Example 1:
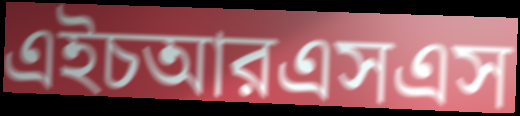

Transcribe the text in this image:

এইচআরএসএস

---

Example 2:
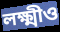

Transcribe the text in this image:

লক্ষ্মীও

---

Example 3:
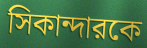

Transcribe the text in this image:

সিকান্দারকে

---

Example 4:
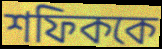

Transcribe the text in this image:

শফিককে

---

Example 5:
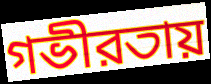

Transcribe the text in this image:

গভীরতায়